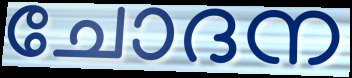
ചോദന